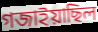
গজাইয়াছিল